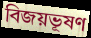
বিজয়ভূষণ